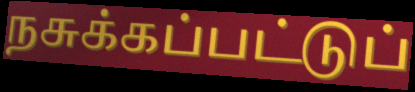
நசுக்கப்பட்டுப்